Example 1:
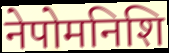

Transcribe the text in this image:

नेपोमनिशि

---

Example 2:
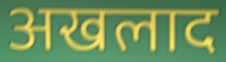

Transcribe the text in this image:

अखलाद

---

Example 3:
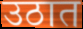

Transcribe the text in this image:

उठात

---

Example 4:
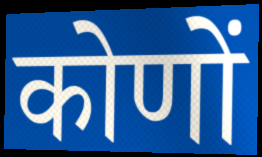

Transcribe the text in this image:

कोणों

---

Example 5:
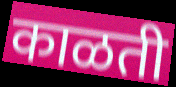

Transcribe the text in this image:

काळती